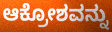
ಆಕ್ರೋಶವನ್ನು